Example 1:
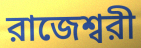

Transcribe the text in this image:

রাজেশ্বরী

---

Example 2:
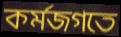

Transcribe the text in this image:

কর্মজগতে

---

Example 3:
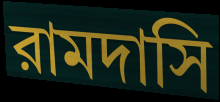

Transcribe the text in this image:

রামদাসি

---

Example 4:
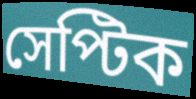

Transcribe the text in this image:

সেপ্টিক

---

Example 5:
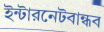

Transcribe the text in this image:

ইন্টারনেটবান্ধব